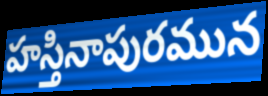
హస్తినాపురమున